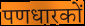
पणधारकों